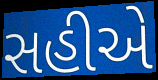
સહીએ